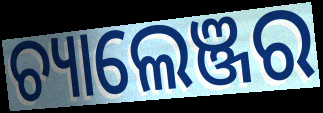
ଚ୍ୟାଲେଞ୍ଜର